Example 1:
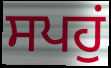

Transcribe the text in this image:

ਸਪਹੁਂ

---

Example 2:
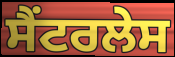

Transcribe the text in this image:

ਸੈਂਟਰਲੇਸ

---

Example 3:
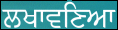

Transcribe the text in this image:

ਲਖਾਵਣਿਆ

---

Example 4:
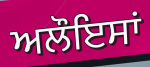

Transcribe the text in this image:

ਅਲੌਇਸਾਂ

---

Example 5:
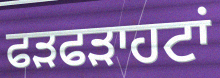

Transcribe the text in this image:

ਫੜਫੜਾਹਟਾਂ